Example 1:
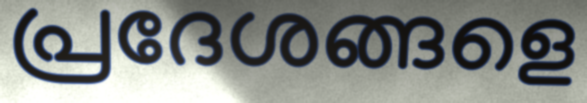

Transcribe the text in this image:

പ്രദേശങ്ങളെ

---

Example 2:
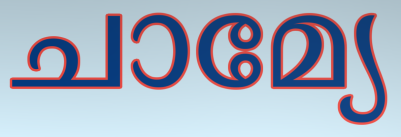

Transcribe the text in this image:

ചാമ്യേ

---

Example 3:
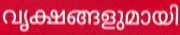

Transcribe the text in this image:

വൃക്ഷങ്ങളുമായി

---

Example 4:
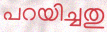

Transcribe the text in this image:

പറയിച്ചതു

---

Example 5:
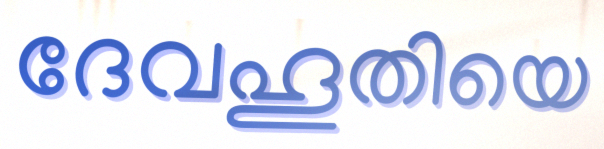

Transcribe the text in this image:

ദേവഹൂതിയെ